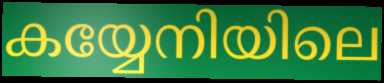
കയ്യേനിയിലെ